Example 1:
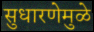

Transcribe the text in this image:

सुधारणेमुळे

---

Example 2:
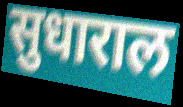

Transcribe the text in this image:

सुधाराल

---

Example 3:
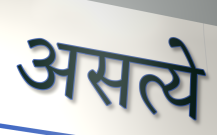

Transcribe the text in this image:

असत्ये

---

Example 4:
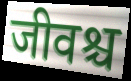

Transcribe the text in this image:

जीवश्च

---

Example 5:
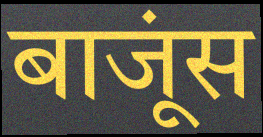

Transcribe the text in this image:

बाजूंस